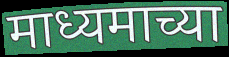
माध्यमाच्या